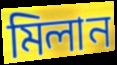
মিলান